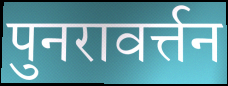
पुनरावर्त्तन